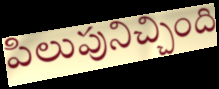
పిలుపునిచ్చింది